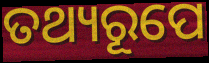
ତଥ୍ୟରୂପେ